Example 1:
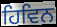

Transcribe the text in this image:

ਹਿਵਿਨ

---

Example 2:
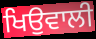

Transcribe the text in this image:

ਖਿਉਵਾਲੀ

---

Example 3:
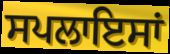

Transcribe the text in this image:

ਸਪਲਾਇਸਾਂ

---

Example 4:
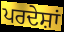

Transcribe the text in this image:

ਪਰਦੇਸ਼ਾਂ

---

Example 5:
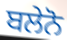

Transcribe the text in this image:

ਬਲੇਨੋ